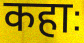
कहाः